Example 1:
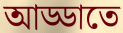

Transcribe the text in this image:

আড্ডাতে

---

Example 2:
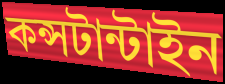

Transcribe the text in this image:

কন্সটান্টাইন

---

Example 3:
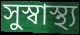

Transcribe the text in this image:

সুস্বাস্থ্য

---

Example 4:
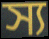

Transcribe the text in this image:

স্য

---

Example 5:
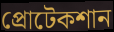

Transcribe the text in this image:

প্রোটেকশান